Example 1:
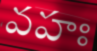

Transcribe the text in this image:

వహః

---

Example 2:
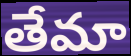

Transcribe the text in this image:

తేమా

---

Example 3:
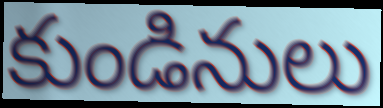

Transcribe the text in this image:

కుండినులు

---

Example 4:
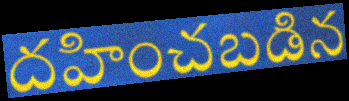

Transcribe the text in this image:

దహించబడిన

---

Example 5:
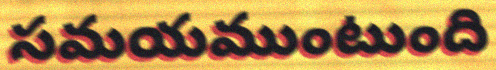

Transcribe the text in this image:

సమయముంటుంది